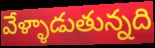
వేళ్ళాడుతున్నది